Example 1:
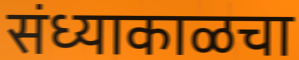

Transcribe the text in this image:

संध्याकाळचा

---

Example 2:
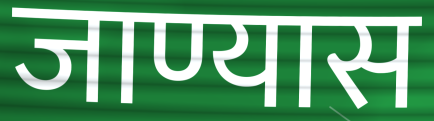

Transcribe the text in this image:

जाण्यास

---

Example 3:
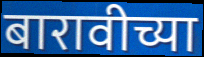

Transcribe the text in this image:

बारावीच्या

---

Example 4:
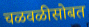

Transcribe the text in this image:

चळवळीसोबत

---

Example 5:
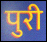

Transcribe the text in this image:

पुरी